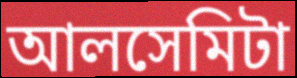
আলসেমিটা